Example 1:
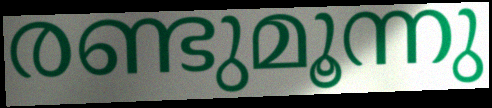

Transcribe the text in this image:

രണ്ടുമൂന്നു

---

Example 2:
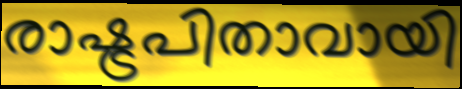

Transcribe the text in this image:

രാഷ്ട്രപിതാവായി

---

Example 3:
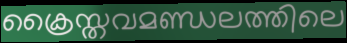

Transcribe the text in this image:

ക്രൈസ്തവമണ്ഡലത്തിലെ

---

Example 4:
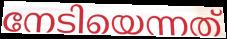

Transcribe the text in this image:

നേടിയെന്നത്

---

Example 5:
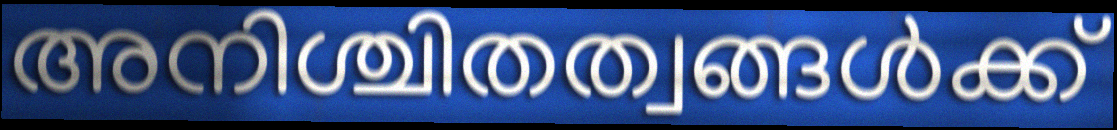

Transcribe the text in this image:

അനിശ്ചിതത്വങ്ങൾക്ക്